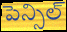
పెన్సిల్